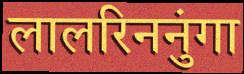
लालरिननुंगा